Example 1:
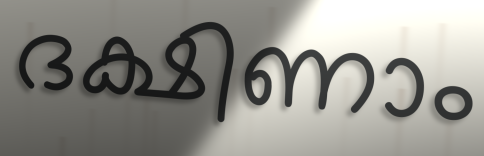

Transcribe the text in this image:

ദക്ഷിണാം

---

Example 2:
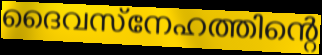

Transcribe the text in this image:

ദൈവസ്‌നേഹത്തിന്റെ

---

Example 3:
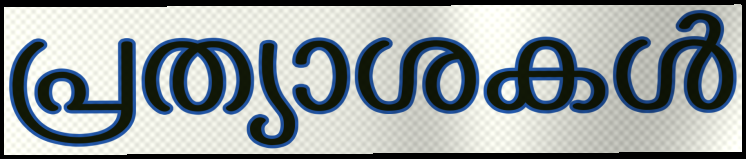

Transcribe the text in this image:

പ്രത്യാശകൾ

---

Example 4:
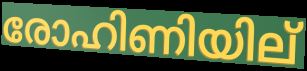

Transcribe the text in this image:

രോഹിണിയില്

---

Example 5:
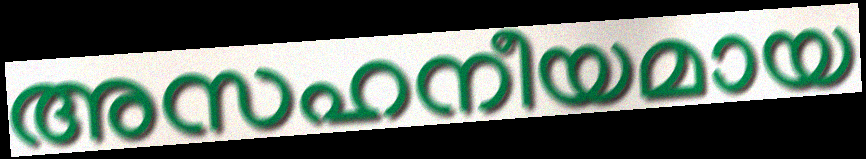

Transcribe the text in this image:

അസഹനീയമായ